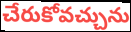
చేరుకోవచ్చును